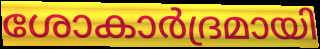
ശോകാർദ്രമായി